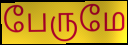
பேருமே